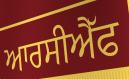
ਆਰਸੀਐੱਫ